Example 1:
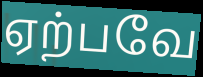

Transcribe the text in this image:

ஏற்பவே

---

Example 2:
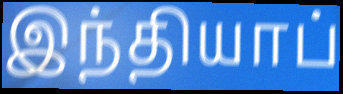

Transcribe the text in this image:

இந்தியாப்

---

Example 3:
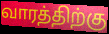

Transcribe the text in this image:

வாரத்திற்கு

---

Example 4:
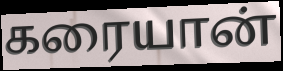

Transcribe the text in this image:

கரையான்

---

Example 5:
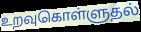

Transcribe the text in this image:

உறவுகொள்ளுதல்